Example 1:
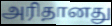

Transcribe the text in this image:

அரிதானது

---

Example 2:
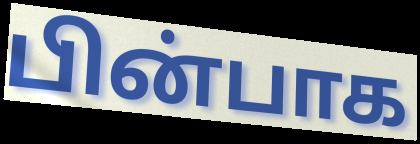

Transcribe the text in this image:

பின்பாக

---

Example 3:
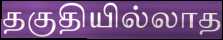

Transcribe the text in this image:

தகுதியில்லாத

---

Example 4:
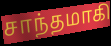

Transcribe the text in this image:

சாந்தமாகி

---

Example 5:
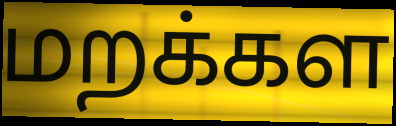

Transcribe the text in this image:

மறக்கள